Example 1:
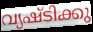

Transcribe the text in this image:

വ്യഷ്ടിക്കു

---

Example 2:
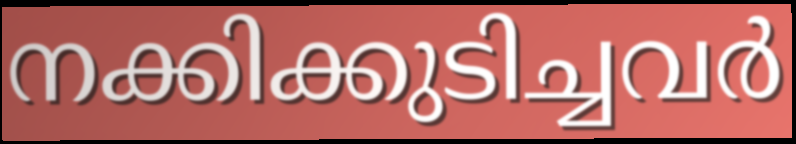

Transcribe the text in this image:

നക്കിക്കുടിച്ചവർ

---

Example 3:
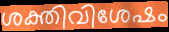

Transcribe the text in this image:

ശക്തിവിശേഷം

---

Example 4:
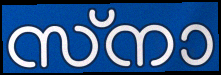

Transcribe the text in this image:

സ്‌നാ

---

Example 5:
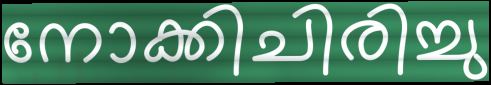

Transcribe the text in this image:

നോക്കിചിരിച്ചു